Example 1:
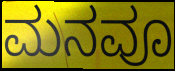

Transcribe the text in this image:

ಮನವೂ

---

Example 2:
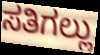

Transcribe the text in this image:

ಸತಿಗಲ್ಲು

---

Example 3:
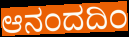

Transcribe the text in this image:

ಆನಂದದಿಂ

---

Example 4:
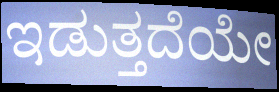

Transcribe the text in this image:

ಇಡುತ್ತದೆಯೇ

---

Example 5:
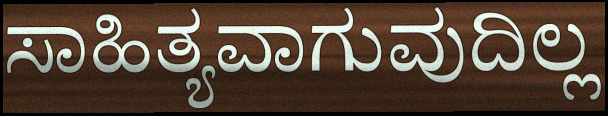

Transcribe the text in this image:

ಸಾಹಿತ್ಯವಾಗುವುದಿಲ್ಲ